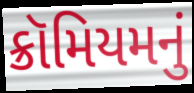
ક્રૉમિયમનું